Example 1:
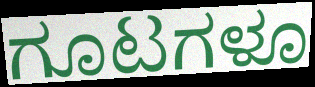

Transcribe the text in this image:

ಗೂಟಗಳೂ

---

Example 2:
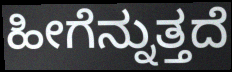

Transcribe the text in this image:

ಹೀಗೆನ್ನುತ್ತದೆ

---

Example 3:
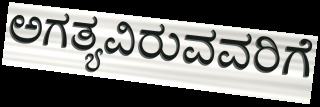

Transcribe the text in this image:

ಅಗತ್ಯವಿರುವವರಿಗೆ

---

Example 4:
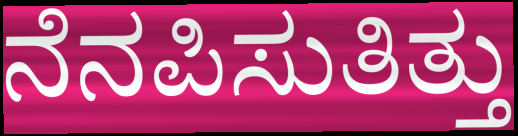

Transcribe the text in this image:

ನೆನಪಿಸುತಿತ್ತು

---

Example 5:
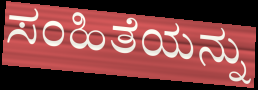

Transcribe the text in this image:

ಸಂಹಿತೆಯನ್ನು